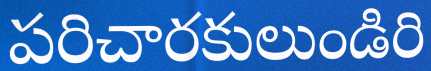
పరిచారకులుండిరి